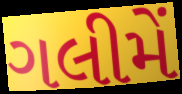
ગલીમેં